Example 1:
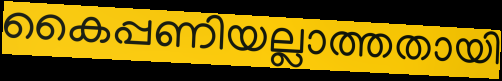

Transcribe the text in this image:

കൈപ്പണിയല്ലാത്തതായി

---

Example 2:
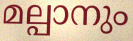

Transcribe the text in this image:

മല്പാനും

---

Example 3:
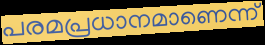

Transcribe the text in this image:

പരമപ്രധാനമാണെന്ന്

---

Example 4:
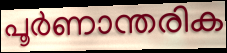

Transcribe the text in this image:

പൂർണാന്തരിക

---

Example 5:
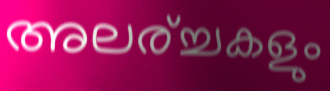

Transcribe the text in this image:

അലര്ച്ചകളും